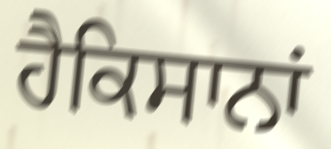
ਹੈਕਿਸਾਨਾਂ